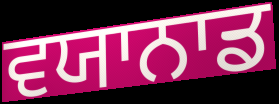
ਵਯਾਨਾਡ